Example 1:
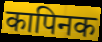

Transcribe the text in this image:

कापिनक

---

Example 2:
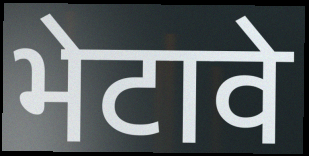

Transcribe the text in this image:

भेटावे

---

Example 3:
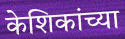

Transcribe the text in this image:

केशिकांच्या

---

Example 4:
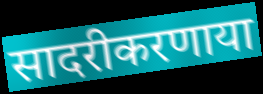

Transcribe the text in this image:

सादरीकरणाया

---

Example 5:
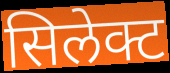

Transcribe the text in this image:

सिलेक्ट